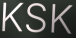
KSK